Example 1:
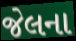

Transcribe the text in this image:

જેલના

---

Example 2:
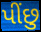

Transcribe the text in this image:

પીંછુ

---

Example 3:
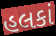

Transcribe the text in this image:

હલકાં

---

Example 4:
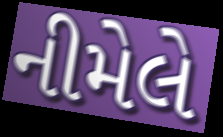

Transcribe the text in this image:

નીમેલે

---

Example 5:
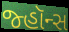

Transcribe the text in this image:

જ્હૉન્સ